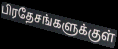
பிரதேசங்களுக்குள்